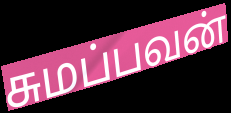
சுமப்பவன்